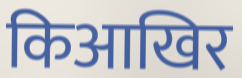
किआखिर